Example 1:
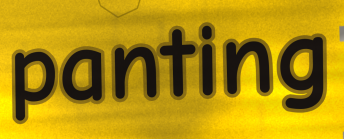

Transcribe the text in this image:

panting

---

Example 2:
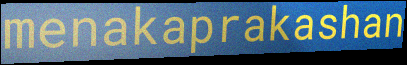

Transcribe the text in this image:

menakaprakashan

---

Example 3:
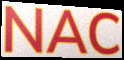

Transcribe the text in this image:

NAC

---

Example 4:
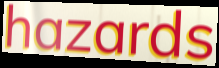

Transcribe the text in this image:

hazards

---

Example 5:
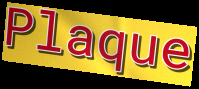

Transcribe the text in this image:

Plaque